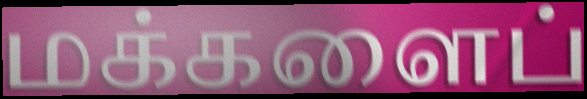
மக்களைப்